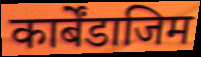
कार्बेंडाजिम